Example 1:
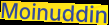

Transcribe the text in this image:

Moinuddin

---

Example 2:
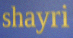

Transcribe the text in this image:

shayri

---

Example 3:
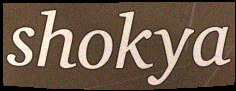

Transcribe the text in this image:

shokya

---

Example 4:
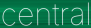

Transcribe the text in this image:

central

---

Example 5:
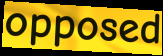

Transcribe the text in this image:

opposed